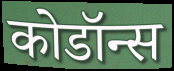
कोडॉन्स